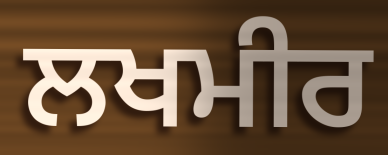
ਲਖਮੀਰ